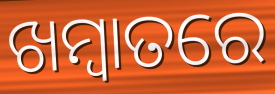
ଖମ୍ବାତରେ